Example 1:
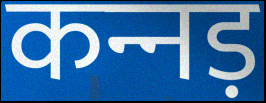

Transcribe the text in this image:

कन्‍नड़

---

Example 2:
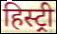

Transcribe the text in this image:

हिस्ट्री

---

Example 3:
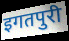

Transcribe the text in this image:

इगतपुरी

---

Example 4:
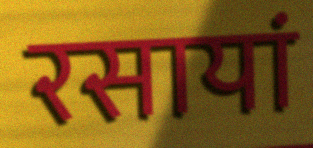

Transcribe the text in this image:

रसायां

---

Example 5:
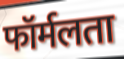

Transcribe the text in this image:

फॉर्मलता